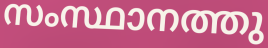
സംസ്ഥാനത്തു